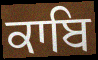
ਕਾਬਿ